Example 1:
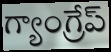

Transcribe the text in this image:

గ్యాంగ్రేప్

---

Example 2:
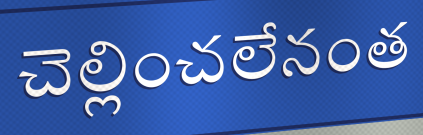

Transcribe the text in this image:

చెల్లించలేనంత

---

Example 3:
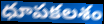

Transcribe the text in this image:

ధూపకలశం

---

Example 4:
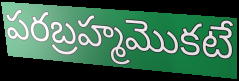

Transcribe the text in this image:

పరబ్రహ్మమొకటే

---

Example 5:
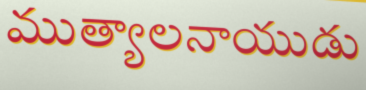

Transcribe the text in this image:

ముత్యాలనాయుడు